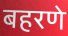
बहरणे